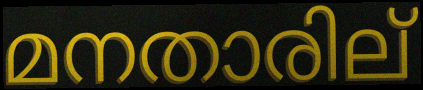
മനതാരില്